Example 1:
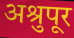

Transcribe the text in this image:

अश्रुपूर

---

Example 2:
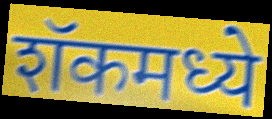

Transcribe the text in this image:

शॅकमध्ये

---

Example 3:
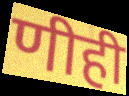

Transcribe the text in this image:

णीही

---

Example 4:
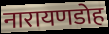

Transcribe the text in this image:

नारायणडोह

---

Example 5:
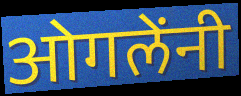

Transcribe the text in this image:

ओगलेंनी